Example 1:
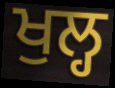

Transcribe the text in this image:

ਖੁਲ੍ਹ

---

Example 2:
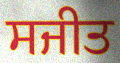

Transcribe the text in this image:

ਸਜੀਤ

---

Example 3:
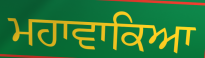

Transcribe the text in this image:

ਮਹਾਵਾਕਿਆ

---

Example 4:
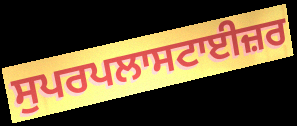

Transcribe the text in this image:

ਸੁਪਰਪਲਾਸਟਾਈਜ਼ਰ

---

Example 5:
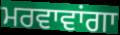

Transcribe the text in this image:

ਮਰਵਾਵਾਂਗਾ